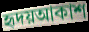
হৃদয়আকাশ